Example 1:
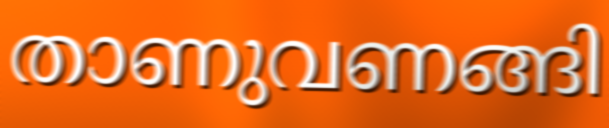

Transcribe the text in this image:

താണുവണങ്ങി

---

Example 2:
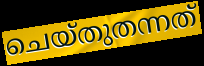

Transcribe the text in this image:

ചെയ്തുതന്നത്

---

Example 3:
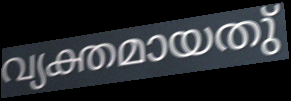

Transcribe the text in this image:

വ്യക്തമായതു്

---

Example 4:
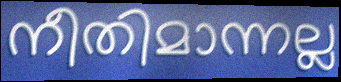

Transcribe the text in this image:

നീതിമാന്നല്ല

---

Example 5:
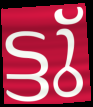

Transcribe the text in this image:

ട്ടു്